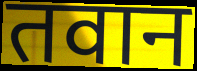
तवान